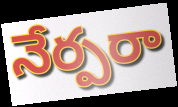
నేర్పరా